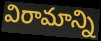
విరామాన్ని